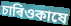
চাৰিওকাষে